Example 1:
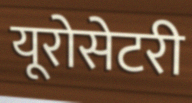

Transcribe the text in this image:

यूरोसेटरी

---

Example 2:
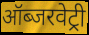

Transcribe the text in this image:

ऑब्जरवेट्री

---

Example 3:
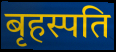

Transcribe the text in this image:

बृहस्‍पति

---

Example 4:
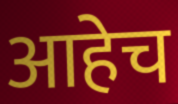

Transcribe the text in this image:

आहेच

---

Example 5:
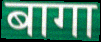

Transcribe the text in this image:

बागा